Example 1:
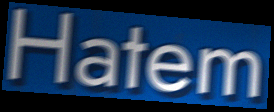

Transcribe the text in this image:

Hatem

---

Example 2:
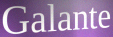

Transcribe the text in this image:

Galante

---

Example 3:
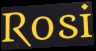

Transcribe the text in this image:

Rosi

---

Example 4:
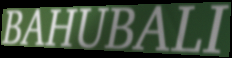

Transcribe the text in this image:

BAHUBALI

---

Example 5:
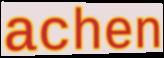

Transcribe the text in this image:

achen